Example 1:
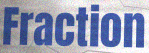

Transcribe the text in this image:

Fraction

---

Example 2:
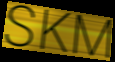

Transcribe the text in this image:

SKM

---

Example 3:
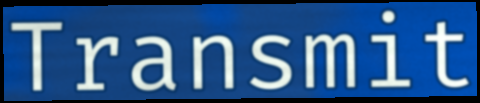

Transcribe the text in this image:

Transmit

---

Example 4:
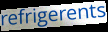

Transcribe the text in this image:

refrigerents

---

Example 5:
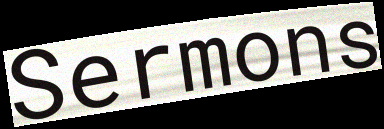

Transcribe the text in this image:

Sermons